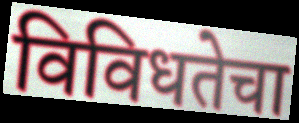
विविधतेचा